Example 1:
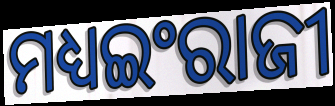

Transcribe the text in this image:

ମଧ୍ୟଇଂରାଜୀ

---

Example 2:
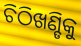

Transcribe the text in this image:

ଚିଠିଖଣ୍ଡିକୁ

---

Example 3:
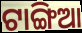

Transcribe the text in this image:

ଟାଙ୍ଗିଆ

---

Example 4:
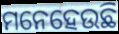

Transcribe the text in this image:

ମନେହେଉଛି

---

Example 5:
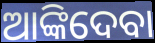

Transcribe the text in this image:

ଆଙ୍କିଦେବା